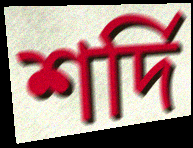
শর্দি